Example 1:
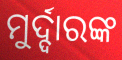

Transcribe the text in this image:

ମୁର୍ଦ୍ଦାରଙ୍କ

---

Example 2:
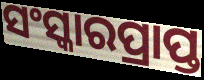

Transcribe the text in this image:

ସଂସ୍କାରପ୍ରାପ୍ତ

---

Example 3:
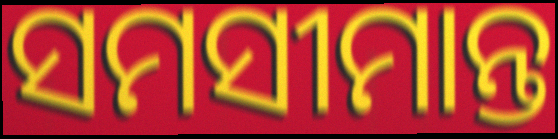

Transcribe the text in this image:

ସମସୀମାନ୍ତ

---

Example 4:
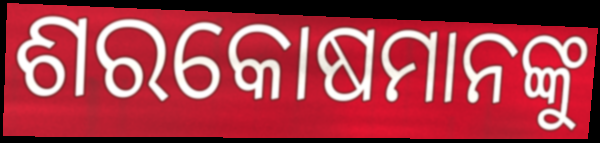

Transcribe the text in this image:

ଶରକୋଷମାନଙ୍କୁ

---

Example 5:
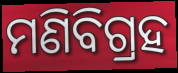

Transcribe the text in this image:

ମଣିବିଗ୍ରହ